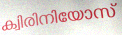
ക്വിരിനിയോസ്